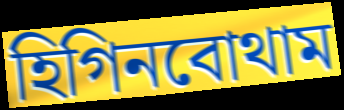
হিগিনবোথাম